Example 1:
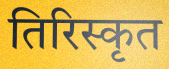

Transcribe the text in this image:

तिरिस्कृत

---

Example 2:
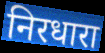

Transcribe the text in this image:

निरधारा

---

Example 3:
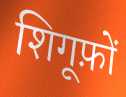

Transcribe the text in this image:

शिगूफ़ों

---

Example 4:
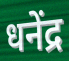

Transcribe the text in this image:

धनेंद्र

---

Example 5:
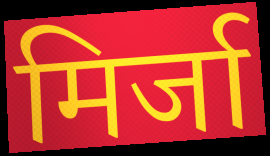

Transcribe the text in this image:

मिर्जा